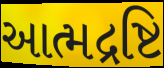
આત્મદ્રષ્ટિ